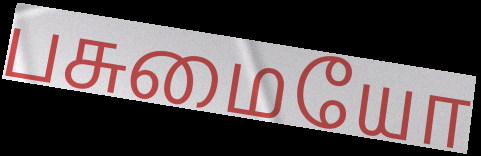
பசுமையோ